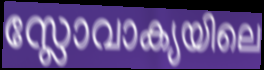
സ്ലോവാക്യയിലെ